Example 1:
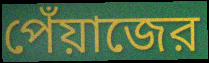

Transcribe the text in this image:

পেঁয়াজের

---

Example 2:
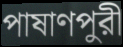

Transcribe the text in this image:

পাষাণপুরী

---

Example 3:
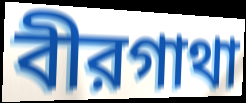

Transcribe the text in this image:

বীরগাথা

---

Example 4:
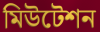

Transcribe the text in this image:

মিউটেশন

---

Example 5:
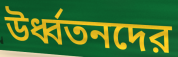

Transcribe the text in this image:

উর্ধ্বতনদের